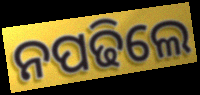
ନପଢିଲେ